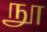
நூ